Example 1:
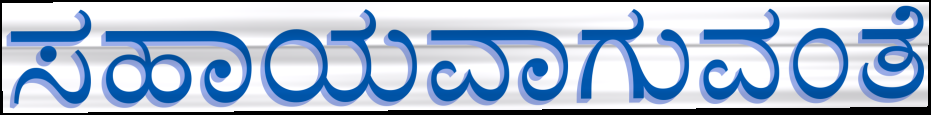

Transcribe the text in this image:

ಸಹಾಯವಾಗುವಂತೆ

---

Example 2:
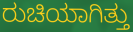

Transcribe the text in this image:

ರುಚಿಯಾಗಿತ್ತು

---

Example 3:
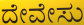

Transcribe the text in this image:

ದೇವೇಸು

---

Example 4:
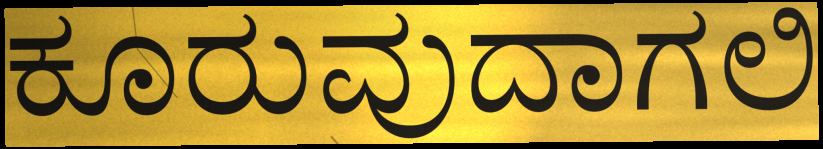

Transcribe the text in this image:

ಕೂರುವುದಾಗಲಿ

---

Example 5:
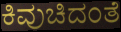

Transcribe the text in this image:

ಕಿವುಚಿದಂತೆ